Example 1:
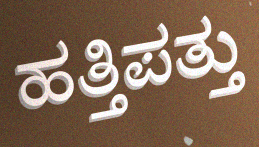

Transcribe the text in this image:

ಹತ್ತಿಪತ್ತು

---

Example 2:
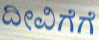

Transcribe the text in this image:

ದೀವಿಗೆಗೆ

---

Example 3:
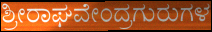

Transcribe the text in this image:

ಶ್ರೀರಾಘವೇಂದ್ರಗುರುಗಳ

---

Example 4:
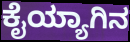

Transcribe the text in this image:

ಕೈಯ್ಯಾಗಿನ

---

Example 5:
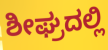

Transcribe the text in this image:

ಶೀಘ್ರದಲ್ಲಿ